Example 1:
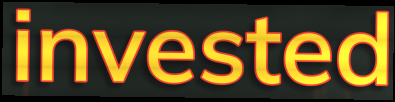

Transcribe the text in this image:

invested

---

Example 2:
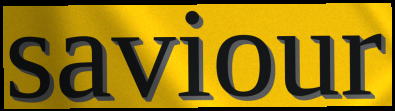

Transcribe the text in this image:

saviour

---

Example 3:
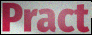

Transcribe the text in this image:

Pract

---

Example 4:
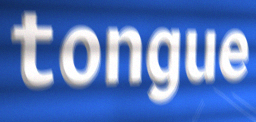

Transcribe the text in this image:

tongue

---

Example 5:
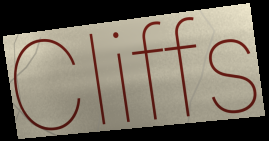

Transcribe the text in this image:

Cliffs